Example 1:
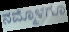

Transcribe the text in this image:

ನಮ್ಮೊಳಗೂ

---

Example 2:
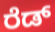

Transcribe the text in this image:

ರೆಡ್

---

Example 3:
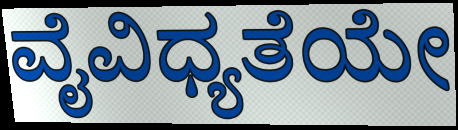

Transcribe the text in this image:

ವೈವಿಧ್ಯತೆಯೇ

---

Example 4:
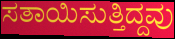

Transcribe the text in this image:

ಸತಾಯಿಸುತ್ತಿದ್ದವು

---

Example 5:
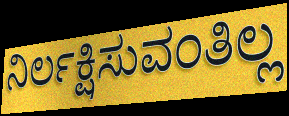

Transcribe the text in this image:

ನಿರ್ಲಕ್ಷಿಸುವಂತಿಲ್ಲ